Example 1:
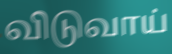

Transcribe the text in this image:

விடுவாய்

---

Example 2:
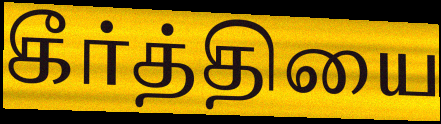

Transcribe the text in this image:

கீர்த்தியை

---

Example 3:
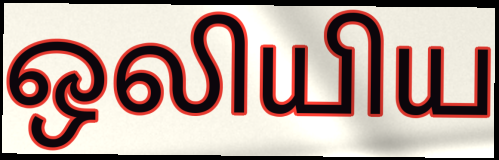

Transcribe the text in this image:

ஒலியிய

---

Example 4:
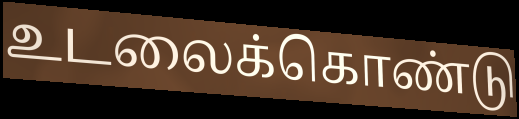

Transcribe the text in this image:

உடலைக்கொண்டு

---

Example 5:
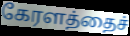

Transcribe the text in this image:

கேரளத்தைச்